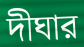
দীঘার